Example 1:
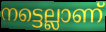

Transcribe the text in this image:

നട്ടെല്ലാണ്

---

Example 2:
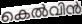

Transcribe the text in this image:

കെൽവിൻ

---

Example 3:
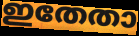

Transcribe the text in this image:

ഇതേതാ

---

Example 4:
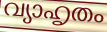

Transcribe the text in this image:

വ്യാഹൃതം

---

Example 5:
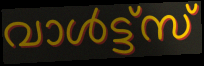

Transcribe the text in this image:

വാൾട്ട്സ്